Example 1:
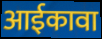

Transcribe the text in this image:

आईकावा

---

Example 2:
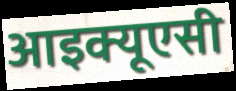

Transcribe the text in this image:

आइक्यूएसी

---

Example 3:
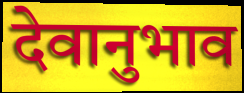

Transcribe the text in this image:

देवानुभाव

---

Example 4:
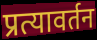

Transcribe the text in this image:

प्रत्यावर्तन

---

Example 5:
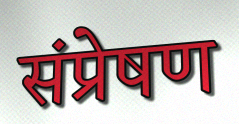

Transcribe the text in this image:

संप्रेषण